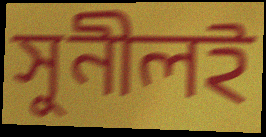
সুনীলই